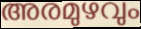
അരമുഴവും